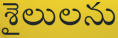
శైలులను